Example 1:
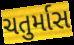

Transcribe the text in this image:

ચતુર્માસ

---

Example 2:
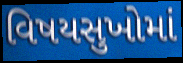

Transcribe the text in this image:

વિષયસુખોમાં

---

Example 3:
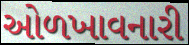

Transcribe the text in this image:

ઓળખાવનારી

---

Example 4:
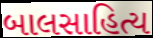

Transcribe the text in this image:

બાલસાહિત્ય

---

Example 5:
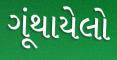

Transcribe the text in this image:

ગૂંથાયેલો